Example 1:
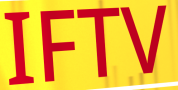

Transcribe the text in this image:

IFTV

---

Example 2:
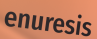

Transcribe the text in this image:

enuresis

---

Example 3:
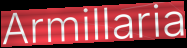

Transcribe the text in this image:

Armillaria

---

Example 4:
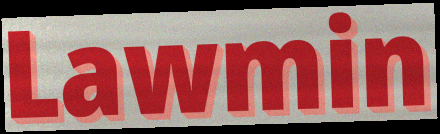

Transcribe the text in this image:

Lawmin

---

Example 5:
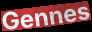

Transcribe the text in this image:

Gennes